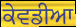
ਕੇਵਡੀਆ